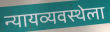
न्यायव्यवस्थेला